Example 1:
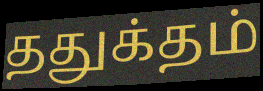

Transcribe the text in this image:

ததுக்தம்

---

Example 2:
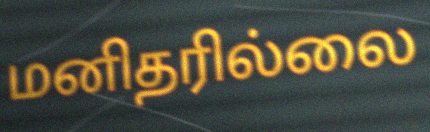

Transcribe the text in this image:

மனிதரில்லை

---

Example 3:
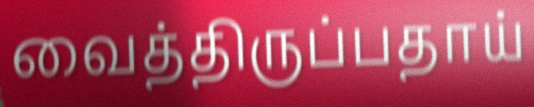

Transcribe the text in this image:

வைத்திருப்பதாய்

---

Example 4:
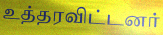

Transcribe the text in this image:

உத்தரவிட்டனர்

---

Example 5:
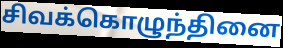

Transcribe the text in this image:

சிவக்கொழுந்தினை